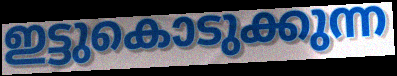
ഇട്ടുകൊടുക്കുന്ന